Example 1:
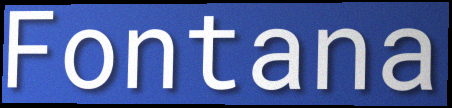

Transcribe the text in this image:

Fontana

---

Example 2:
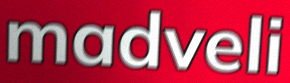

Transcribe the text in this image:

madveli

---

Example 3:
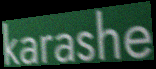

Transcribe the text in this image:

karashe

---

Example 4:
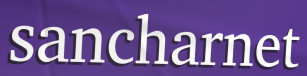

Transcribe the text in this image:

sancharnet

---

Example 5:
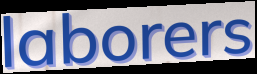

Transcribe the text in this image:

laborers